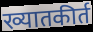
ख्यातकीर्त